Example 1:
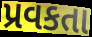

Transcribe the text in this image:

પ્રવકતા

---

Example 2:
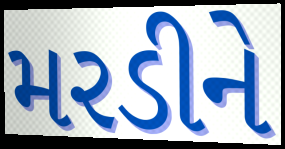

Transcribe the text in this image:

મરડીને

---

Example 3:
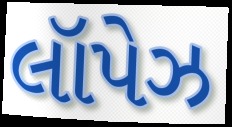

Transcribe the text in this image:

લૉપેઝ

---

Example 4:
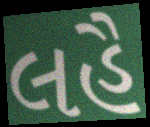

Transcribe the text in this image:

લહૈ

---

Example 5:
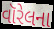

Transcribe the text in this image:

વૉરેલના